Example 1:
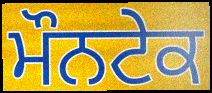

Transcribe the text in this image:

ਮੌਨਟੇਕ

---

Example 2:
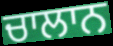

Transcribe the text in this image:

ਚਾਲਾਨ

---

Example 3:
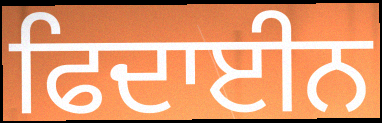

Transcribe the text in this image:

ਫਿਦਾਈਨ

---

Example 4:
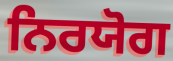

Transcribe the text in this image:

ਨਿਰਯੋਗ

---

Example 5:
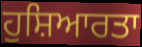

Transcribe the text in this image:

ਹੁਸ਼ਿਆਰਤਾ